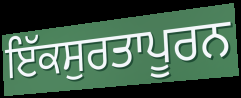
ਇੱਕਸੁਰਤਾਪੂਰਨ